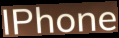
IPhone